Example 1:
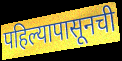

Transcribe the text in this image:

पहिल्यापासूनची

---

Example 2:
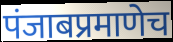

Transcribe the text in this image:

पंजाबप्रमाणेच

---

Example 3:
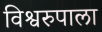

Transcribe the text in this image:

विश्वरुपाला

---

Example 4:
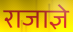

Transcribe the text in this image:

राजाज्ञे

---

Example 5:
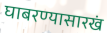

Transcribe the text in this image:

घाबरण्यासारखं